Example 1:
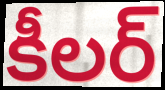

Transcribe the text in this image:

కీలర్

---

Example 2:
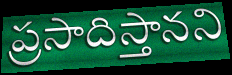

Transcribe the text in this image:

ప్రసాదిస్తానని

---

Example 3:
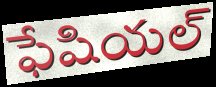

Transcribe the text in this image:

ఫేషియల్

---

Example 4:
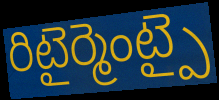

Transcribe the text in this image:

రిటైర్మెంట్పై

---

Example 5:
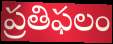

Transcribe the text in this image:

ప్రతిఫలం